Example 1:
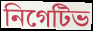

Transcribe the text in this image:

নিগেটিভ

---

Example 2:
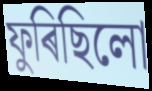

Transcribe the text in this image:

ফুৰিছিলো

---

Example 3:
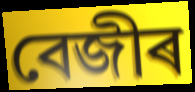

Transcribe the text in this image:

বেজীৰ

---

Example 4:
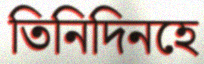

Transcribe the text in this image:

তিনিদিনহে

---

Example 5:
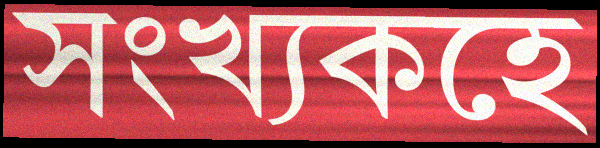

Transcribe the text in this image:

সংখ্যকহে